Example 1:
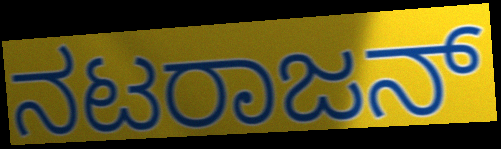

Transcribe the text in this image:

ನಟರಾಜನ್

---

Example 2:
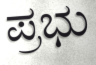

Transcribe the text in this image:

ಪ್ರಭು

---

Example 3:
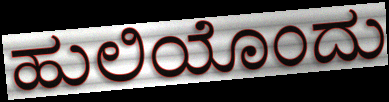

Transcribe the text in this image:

ಹುಲಿಯೊಂದು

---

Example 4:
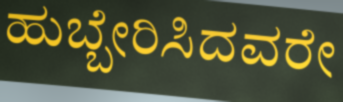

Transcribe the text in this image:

ಹುಬ್ಬೇರಿಸಿದವರೇ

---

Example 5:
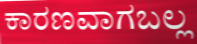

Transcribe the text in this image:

ಕಾರಣವಾಗಬಲ್ಲ